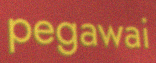
pegawai